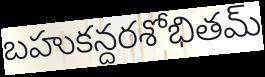
బహుకన్దరశోభితమ్